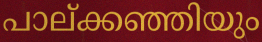
പാല്ക്കഞ്ഞിയും